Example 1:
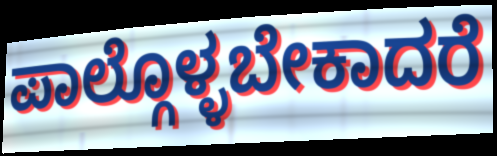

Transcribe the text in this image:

ಪಾಲ್ಗೊಳ್ಳಬೇಕಾದರೆ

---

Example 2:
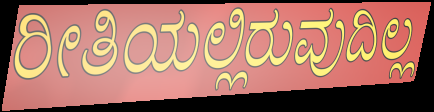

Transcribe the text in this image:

ರೀತಿಯಲ್ಲಿರುವುದಿಲ್ಲ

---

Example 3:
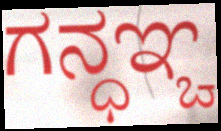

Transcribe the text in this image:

ಗನ್ಧಞ್ಚ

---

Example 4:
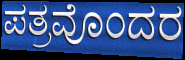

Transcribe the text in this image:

ಪತ್ರವೊಂದರ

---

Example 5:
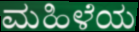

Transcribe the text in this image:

ಮಹಿಳೆಯ